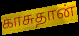
காசுதான்